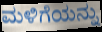
ಮಳಿಗೆಯನ್ನು